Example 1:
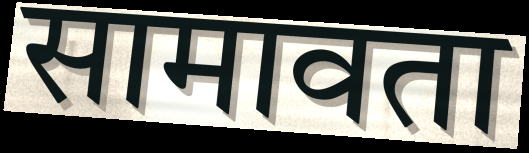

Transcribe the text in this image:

सामावता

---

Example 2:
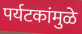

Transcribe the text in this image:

पर्यटकांमुळे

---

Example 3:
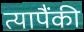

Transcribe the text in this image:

त्यापैंकी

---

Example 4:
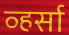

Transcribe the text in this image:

व्हर्सा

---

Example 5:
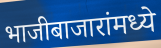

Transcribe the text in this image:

भाजीबाजारांमध्ये